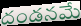
దండనమే